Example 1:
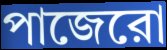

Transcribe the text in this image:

পাজেরো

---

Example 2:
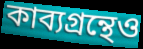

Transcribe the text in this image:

কাব্যগ্রন্থেও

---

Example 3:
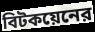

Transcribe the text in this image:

বিটকয়েনের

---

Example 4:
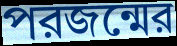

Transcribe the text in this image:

পরজন্মের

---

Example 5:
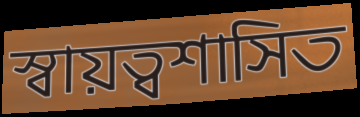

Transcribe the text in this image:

স্বায়ত্বশাসিত